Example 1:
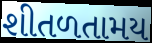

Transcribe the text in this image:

શીતળતામય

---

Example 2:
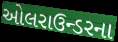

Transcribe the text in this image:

ઓલરાઉન્ડરના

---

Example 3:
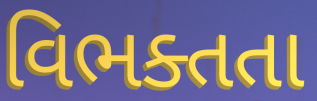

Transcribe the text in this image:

વિભક્તતા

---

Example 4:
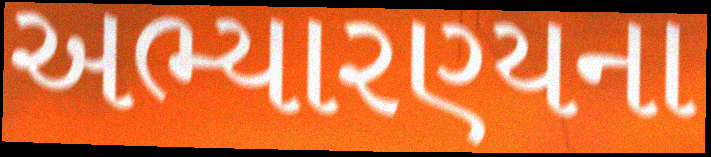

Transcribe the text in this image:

અભ્યારણ્યના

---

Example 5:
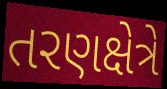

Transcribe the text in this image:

તરણક્ષેત્રે